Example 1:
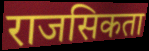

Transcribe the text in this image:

राजसिकता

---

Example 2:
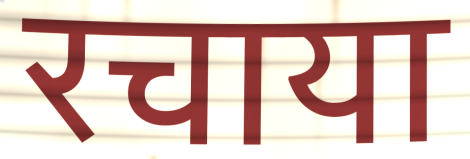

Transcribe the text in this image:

रचाया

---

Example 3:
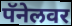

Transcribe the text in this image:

पॅनेलवर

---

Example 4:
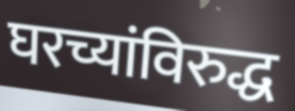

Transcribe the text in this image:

घरच्यांविरुद्ध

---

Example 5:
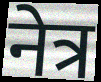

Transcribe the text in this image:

नेत्र